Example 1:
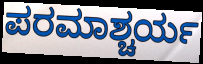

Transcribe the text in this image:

ಪರಮಾಶ್ಚರ್ಯ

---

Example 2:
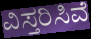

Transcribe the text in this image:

ವಿಸ್ತರಿಸಿವೆ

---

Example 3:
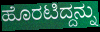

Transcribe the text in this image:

ಹೊರಟಿದ್ದನ್ನು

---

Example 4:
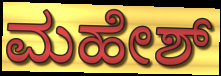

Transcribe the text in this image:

ಮಹೇಶ್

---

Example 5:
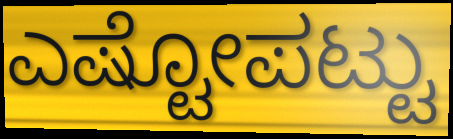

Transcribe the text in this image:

ಎಷ್ಟೋಪಟ್ಟು